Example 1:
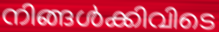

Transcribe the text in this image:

നിങ്ങൾക്കിവിടെ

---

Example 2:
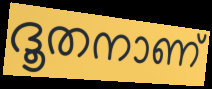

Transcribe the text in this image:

ദൂതനാണ്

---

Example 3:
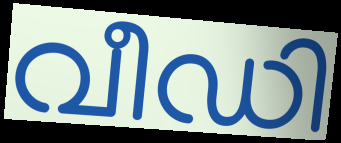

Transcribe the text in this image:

വീഡി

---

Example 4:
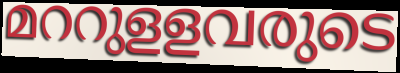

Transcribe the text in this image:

മററുളളവരുടെ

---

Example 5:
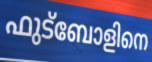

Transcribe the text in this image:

ഫുട്ബോളിനെ